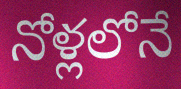
నోళ్లలోనే